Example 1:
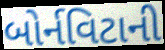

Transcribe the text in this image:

બોર્નવિટાની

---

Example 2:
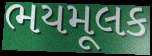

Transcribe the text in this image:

ભયમૂલક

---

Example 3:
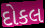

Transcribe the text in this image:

દોકલ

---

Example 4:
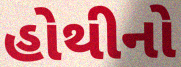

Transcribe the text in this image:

હોથીનો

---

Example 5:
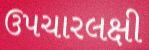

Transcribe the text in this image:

ઉપચારલક્ષી